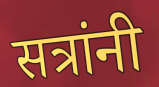
सत्रांनी